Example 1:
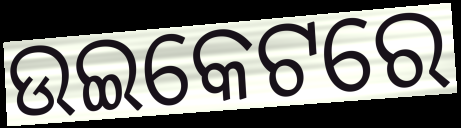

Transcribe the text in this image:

ଉଇକେଟରେ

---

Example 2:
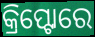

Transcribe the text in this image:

କ୍ରିପ୍ଟୋରେ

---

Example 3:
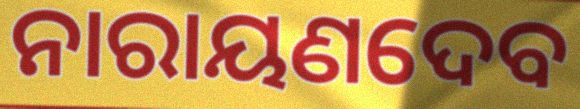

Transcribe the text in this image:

ନାରାୟଣଦେବ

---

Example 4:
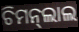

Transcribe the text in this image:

ଚିମନ୍‍ଲାଲ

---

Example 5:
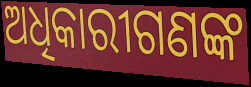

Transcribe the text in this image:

ଅଧିକାରୀଗଣଙ୍କ